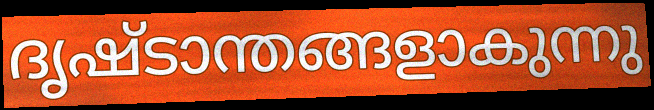
ദൃഷ്ടാന്തങ്ങളാകുന്നു